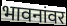
भावनांवर